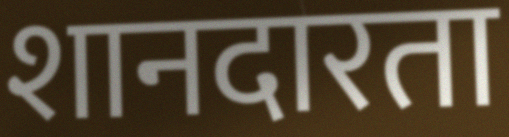
शानदारता